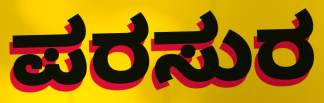
ಪರಸುರ